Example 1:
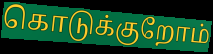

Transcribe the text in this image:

கொடுக்குறோம்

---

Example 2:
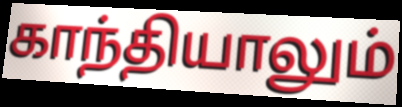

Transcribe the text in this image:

காந்தியாலும்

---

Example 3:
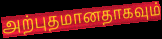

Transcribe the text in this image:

அற்புதமானதாகவும்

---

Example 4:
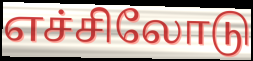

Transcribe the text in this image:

எச்சிலோடு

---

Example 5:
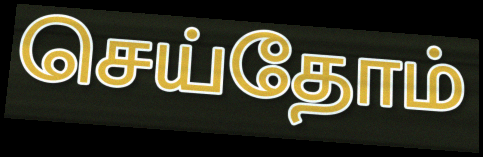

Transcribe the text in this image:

செய்தோம்